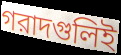
গরাদগুলিই